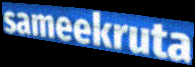
sameekruta